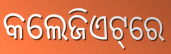
କଲେଜିଏଟ୍‌ରେ